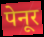
पेनूर